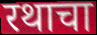
रथाचा